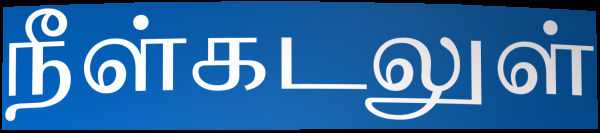
நீள்கடலுள்